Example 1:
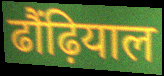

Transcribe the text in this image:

ढौंढ़ियाल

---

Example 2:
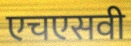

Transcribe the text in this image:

एचएसवी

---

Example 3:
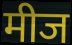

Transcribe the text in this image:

मीज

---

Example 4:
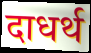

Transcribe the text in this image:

दाधर्थ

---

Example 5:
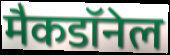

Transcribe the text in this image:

मैकडॉनेल